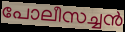
പോലീസച്ചൻ